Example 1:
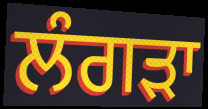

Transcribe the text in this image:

ਲੰਗੜਾ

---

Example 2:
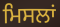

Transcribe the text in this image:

ਮਿਸਲਾਂ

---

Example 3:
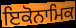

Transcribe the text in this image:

ਇਕੋਨਾਮਿਕ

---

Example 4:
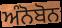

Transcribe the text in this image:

ਅੰਨੋਬੋਨ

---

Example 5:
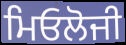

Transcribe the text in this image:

ਮਿਓਲੋਜੀ